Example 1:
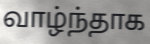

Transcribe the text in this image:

வாழ்ந்தாக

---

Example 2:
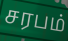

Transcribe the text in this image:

சரபம்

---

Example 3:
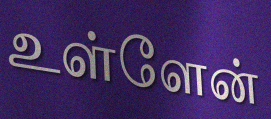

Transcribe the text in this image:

உள்ளேன்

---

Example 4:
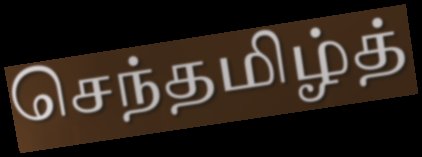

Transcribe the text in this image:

செந்தமிழ்த்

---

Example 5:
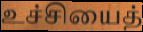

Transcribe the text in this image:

உச்சியைத்